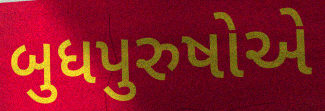
બુધપુરુષોએ